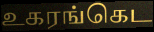
உகரங்கெட